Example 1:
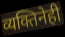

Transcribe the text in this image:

व्यक्तिनेही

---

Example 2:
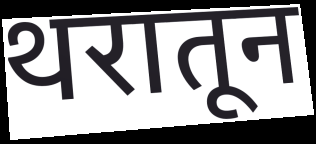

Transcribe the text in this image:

थरातून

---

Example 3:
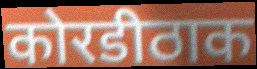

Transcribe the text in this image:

कोरडीठाक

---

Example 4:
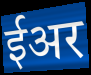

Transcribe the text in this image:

ईअर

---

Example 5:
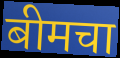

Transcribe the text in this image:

बीमचा